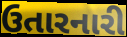
ઉતારનારી